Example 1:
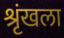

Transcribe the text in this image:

श्रृंखला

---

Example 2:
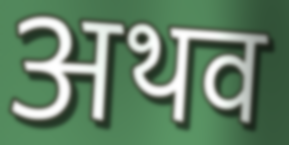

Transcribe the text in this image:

अथव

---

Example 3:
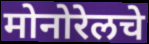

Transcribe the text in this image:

मोनोरेलचे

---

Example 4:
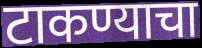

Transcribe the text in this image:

टाकण्याचा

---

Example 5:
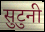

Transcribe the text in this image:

सुटुनी